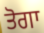
ਤੋਗਾ